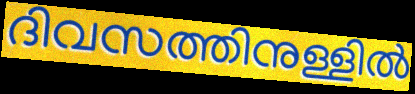
ദിവസത്തിനുള്ളിൽ